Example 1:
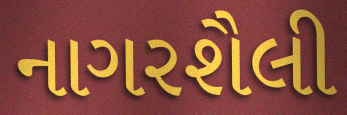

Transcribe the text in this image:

નાગરશૈલી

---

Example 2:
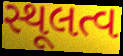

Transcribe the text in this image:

સ્થૂલત્વ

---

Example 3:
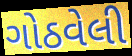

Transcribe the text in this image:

ગોઠવેલી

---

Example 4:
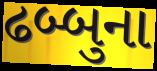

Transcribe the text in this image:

ઢબ્બુના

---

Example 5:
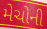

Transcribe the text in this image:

મેચોની